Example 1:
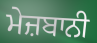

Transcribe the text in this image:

ਮੇਜ਼ਬਾਨੀ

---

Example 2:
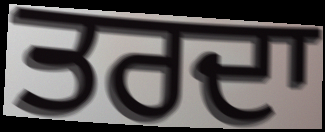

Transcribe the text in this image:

ਤਰਦਾ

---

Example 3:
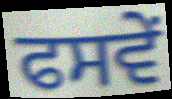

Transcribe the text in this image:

ਫਸਵੇਂ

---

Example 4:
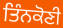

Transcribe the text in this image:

ਤਿੰਨਕੋਣੀ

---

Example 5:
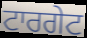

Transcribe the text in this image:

ਟਾਰਗੇਟ